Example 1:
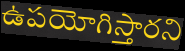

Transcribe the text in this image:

ఉపయోగిస్తారని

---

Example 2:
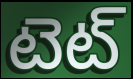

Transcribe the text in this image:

టెట్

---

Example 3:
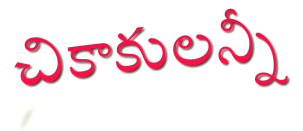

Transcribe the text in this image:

చికాకులన్నీ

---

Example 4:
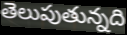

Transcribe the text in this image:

తెలుపుతున్నది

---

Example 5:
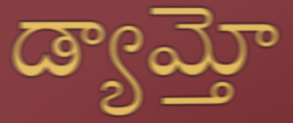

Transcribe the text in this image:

డ్యామ్తో